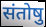
संतोषु